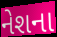
નેશના